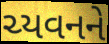
ચ્યવનને